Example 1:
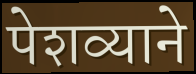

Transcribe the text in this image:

पेशव्याने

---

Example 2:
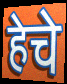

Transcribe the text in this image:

हेचे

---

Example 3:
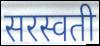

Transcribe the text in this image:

सरस्वती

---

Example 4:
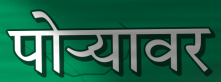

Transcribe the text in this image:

पोर्‍यावर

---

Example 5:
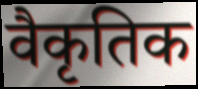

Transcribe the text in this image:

वैकृतिक